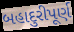
બહાદુરીપૂર્ણ